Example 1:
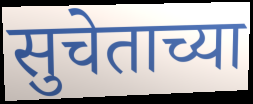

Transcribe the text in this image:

सुचेताच्या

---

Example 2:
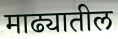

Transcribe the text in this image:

माढ्यातील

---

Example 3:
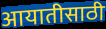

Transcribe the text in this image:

आयातीसाठी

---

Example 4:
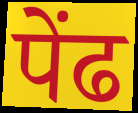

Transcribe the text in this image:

पेंढ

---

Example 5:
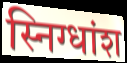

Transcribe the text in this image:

स्निग्धांश